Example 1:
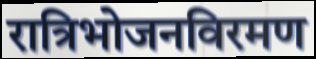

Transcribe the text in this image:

रात्रिभोजनविरमण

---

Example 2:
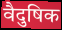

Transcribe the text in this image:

वैदुषिक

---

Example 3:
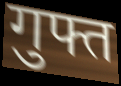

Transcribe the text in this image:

गुफ्त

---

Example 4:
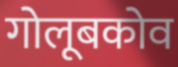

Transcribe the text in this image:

गोलूबकोव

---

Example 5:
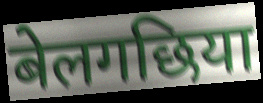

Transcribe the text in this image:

बेलगछिया